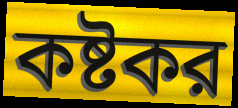
কষ্টকর